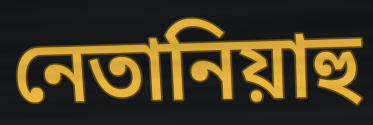
নেতানিয়াহু